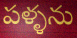
పళ్ళను